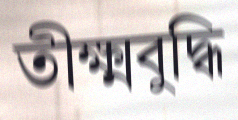
তীক্ষ্মবুদ্ধি